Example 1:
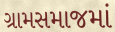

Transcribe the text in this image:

ગ્રામસમાજમાં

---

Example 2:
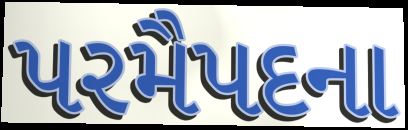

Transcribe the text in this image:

પરમૈપદના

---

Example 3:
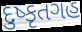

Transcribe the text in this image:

દુષ્કૃતગહ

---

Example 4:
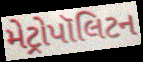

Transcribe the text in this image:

મેટ્રોપૉલિટન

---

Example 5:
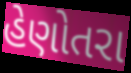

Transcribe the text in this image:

હેણોતરા